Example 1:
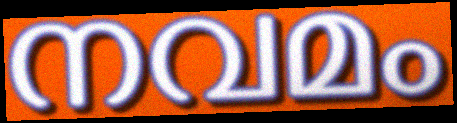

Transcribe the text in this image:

നവമം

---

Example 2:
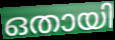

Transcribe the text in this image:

ഒതായി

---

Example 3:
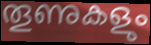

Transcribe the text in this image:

തൂണുകളും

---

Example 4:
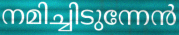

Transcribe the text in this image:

നമിച്ചിടുന്നേൻ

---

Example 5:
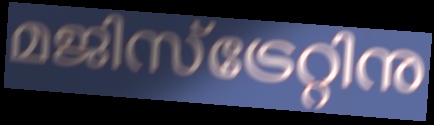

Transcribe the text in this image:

മജിസ്ട്രേറ്റിനു